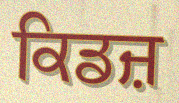
ਕਿਡਜ਼